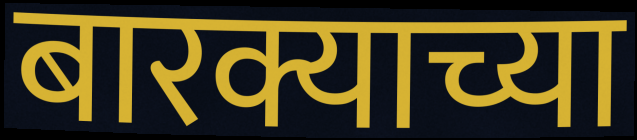
बारक्याच्या